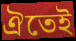
ঐতেই